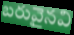
బరువైనవి